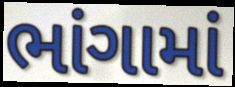
ભાંગામાં